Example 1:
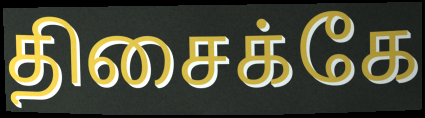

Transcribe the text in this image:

திசைக்கே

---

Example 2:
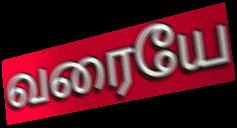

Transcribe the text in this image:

வரையே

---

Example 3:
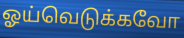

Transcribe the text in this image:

ஓய்வெடுக்கவோ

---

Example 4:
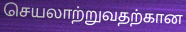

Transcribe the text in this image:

செயலாற்றுவதற்கான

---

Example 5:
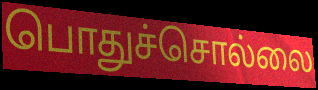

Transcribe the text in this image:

பொதுச்சொல்லை